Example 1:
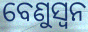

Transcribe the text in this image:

ବେଣୁସ୍ଵନ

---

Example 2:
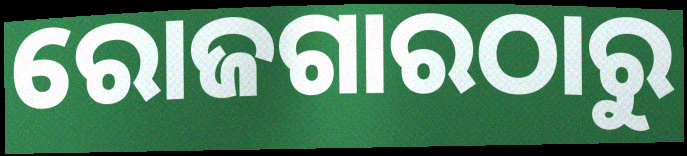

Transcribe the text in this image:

ରୋଜଗାରଠାରୁ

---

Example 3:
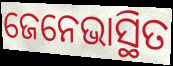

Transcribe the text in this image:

ଜେନେଭାସ୍ଥିତ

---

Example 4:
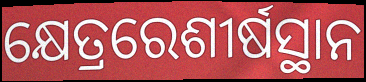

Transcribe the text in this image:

କ୍ଷେତ୍ରରେଶୀର୍ଷସ୍ଥାନ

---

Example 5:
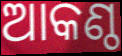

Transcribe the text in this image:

ଆକଣ୍ଠ